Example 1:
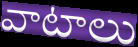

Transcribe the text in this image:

వాటాలు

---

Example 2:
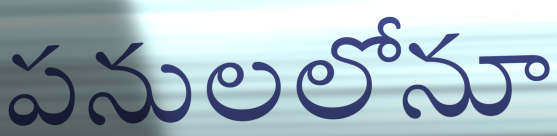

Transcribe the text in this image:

పనులలోనూ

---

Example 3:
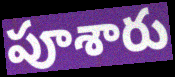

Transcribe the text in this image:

పూశారు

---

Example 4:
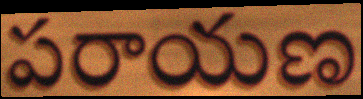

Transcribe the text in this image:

పరాయణ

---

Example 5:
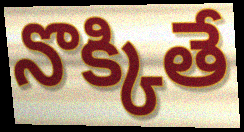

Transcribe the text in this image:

నొక్కితే